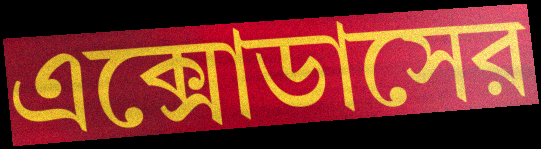
এক্সোডাসের